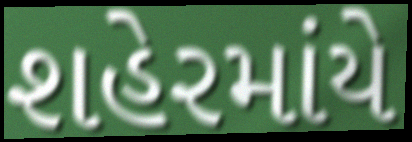
શહેરમાંયે